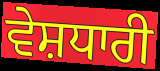
ਵੇਸ਼ਧਾਰੀ